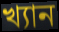
খ্যান